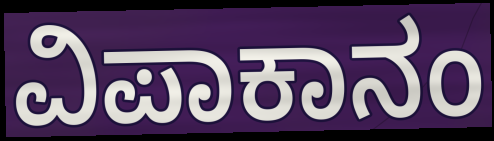
ವಿಪಾಕಾನಂ